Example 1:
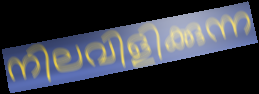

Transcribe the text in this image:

നിലവിളിക്കുന്ന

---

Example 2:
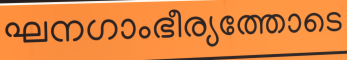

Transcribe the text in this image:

ഘനഗാംഭീര്യത്തോടെ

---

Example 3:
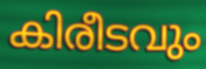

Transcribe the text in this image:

കിരീടവും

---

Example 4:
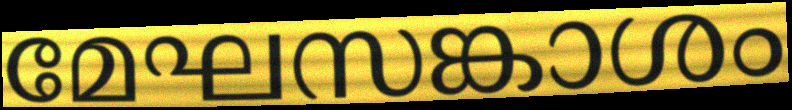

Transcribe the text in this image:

മേഘസങ്കാശം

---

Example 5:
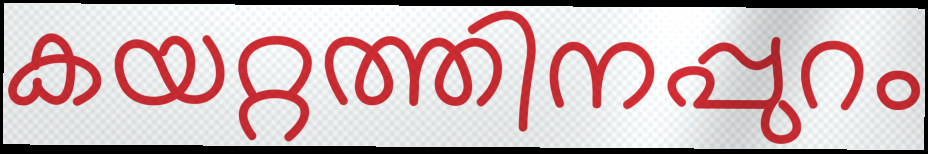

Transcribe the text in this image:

കയറ്റത്തിനപ്പുറം